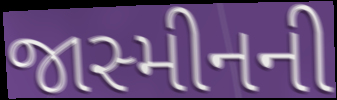
જાસ્મીનની